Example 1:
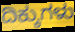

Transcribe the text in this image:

ದಿಕ್ಕುಗಳು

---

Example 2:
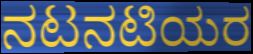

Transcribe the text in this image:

ನಟನಟಿಯರ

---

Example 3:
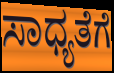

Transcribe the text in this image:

ಸಾಧ್ಯತೆಗೆ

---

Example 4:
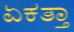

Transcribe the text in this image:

ಏಕತ್ತಾ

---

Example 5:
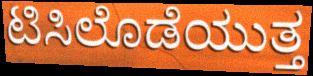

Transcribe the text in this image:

ಟಿಸಿಲೊಡೆಯುತ್ತ